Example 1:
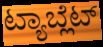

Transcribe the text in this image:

ಟ್ಯಾಬ್ಲೆಟ್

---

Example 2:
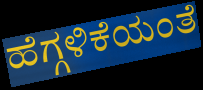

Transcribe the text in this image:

ಹೆಗ್ಗಳಿಕೆಯಂತೆ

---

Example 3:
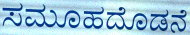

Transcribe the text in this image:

ಸಮೂಹದೊಡನೆ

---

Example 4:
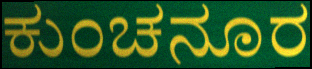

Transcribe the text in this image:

ಕುಂಚನೂರ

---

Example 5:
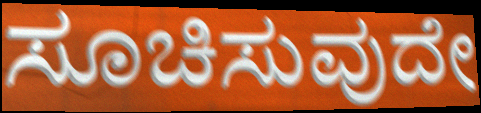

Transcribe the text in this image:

ಸೂಚಿಸುವುದೇ